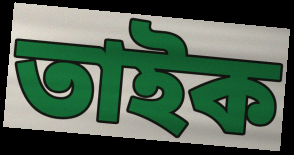
তাইক